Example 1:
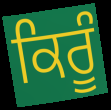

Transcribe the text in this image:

ਕਿਰੂੰ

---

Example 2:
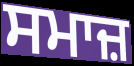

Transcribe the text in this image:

ਸਮਾਜ਼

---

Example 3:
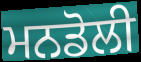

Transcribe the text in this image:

ਮਨਡੋਲੀ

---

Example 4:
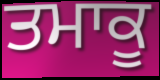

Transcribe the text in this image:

ਤਮਾਕੂ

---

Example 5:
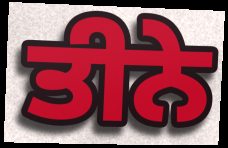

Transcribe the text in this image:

ਤੀਨੇ